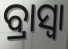
ବ୍ରାସ୍ବା